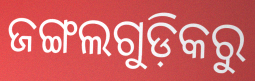
ଜଙ୍ଗଲଗୁଡ଼ିକରୁ